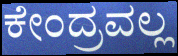
ಕೇಂದ್ರವಲ್ಲ